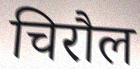
चिरौल